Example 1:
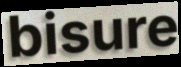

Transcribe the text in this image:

bisure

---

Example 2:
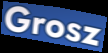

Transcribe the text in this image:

Grosz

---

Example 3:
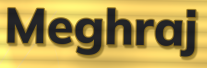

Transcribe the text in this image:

Meghraj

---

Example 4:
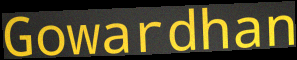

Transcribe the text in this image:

Gowardhan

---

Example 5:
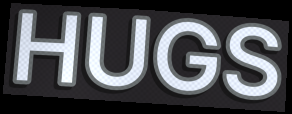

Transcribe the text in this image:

HUGS